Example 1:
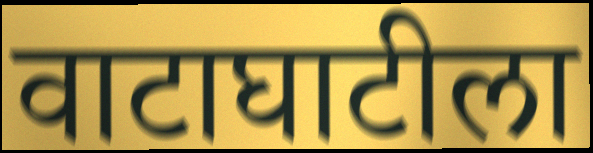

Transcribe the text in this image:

वाटाघाटीला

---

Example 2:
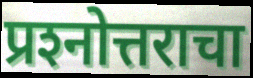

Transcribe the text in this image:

प्रश्‍नोत्तराचा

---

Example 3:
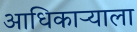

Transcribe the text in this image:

आधिकाऱ्याला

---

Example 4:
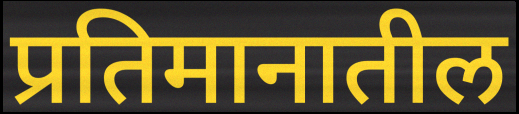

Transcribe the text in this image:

प्रतिमानातील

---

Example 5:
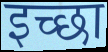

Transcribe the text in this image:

इच्छा